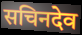
सचिनदेव